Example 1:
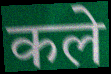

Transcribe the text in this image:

कले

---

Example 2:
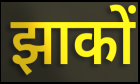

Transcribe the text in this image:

झाकों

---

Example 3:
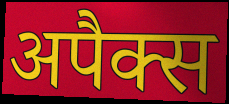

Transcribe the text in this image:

अपैक्स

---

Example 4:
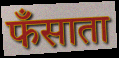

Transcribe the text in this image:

फँसाता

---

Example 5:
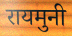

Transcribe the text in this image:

रायमुनी